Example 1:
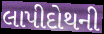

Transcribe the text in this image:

લાપીદોથની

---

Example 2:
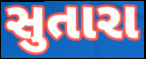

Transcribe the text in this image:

સુતારા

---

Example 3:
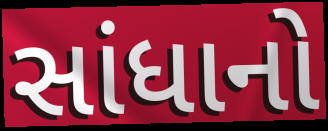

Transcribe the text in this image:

સાંધાનો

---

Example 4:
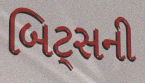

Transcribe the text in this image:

બિટ્સની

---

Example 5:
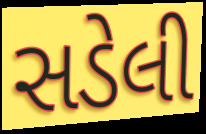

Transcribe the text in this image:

સડેલી